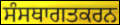
ਸੰਸਥਾਗਤਕਰਨ